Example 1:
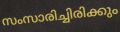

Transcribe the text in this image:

സംസാരിച്ചിരിക്കും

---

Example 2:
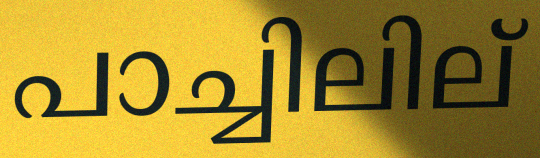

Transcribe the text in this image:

പാച്ചിലില്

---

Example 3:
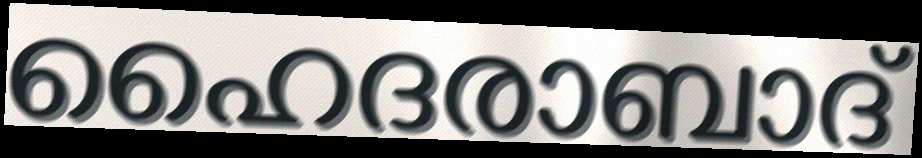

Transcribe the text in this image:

ഹൈദരാബാദ്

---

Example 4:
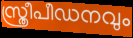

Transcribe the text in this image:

സ്ത്രീപീഡനവും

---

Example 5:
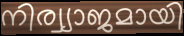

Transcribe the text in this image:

നിര്വ്യാജമായി